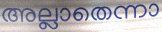
അല്ലാതെന്നാ